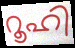
റൂഹി